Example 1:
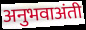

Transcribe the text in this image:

अनुभवाअंती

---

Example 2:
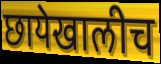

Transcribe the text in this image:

छायेखालीच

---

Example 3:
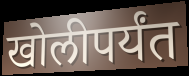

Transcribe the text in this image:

खोलीपर्यंत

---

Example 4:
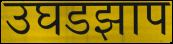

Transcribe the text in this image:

उघडझाप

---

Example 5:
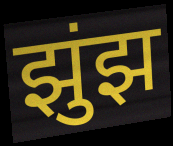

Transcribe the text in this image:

झुंझ